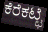
ಕೆರೆಕಟ್ಟೆ